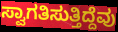
ಸ್ವಾಗತಿಸುತ್ತಿದ್ದೆವು